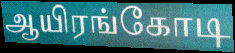
ஆயிரங்கோடி